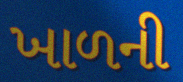
ખાળની